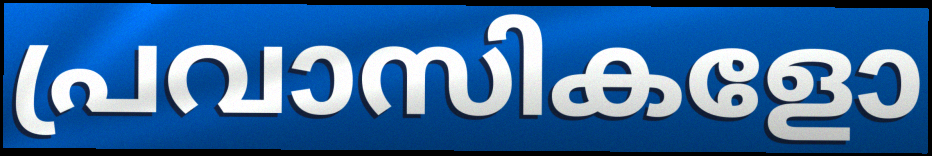
പ്രവാസികളോ